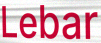
Lebar